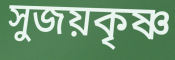
সুজয়কৃষ্ণ